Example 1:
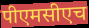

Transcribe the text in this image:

पीएमसीएच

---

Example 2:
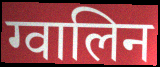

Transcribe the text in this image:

ग्वालिन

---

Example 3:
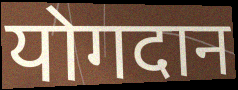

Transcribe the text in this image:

योगदान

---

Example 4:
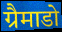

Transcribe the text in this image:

ग्रैमाडो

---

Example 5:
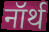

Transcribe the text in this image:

नॉर्थ